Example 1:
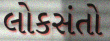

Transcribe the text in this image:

લોકસંતો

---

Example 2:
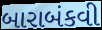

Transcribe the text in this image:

બારાબંકવી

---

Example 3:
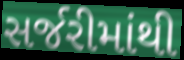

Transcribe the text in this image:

સર્જરીમાંથી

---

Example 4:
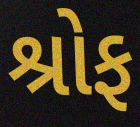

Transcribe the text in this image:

શ્રોફ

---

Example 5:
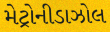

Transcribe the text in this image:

મેટ્રોનીડાઝોલ